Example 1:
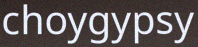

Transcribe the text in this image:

choygypsy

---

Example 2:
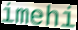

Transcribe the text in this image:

imehi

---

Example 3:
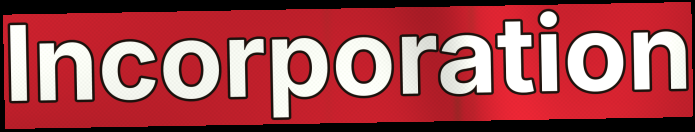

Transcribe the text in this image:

Incorporation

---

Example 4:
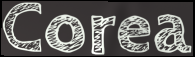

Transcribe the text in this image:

Corea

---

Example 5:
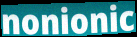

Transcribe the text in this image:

nonionic